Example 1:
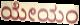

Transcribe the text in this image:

ಯೇಯಂ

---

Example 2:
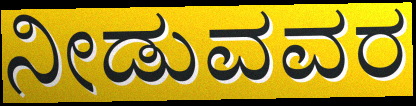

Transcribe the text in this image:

ನೀಡುವವರ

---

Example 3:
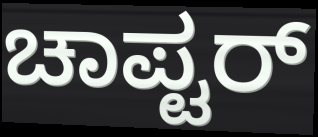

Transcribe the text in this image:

ಚಾಪ್ಟರ್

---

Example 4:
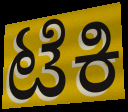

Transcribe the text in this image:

ಟೆಕಿ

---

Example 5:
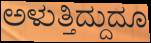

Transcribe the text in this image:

ಅಳುತ್ತಿದ್ದುದೂ